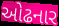
ઓઢનાર